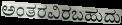
ಅಂತರವಿರಬಹುದು